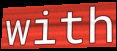
with